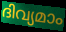
ദിവ്യമാം